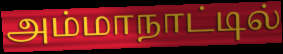
அம்மாநாட்டில்